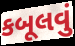
કબૂલવું